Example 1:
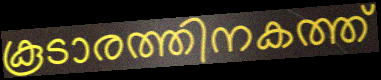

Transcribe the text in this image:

കൂടാരത്തിനകത്ത്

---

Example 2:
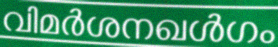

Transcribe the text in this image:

വിമർശനഖൾഗം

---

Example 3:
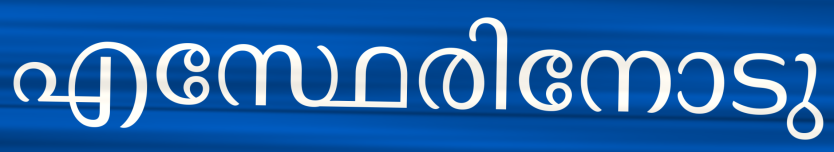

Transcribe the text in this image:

എസ്ഥേരിനോടു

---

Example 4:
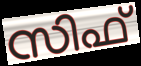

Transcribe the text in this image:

സിഫ്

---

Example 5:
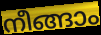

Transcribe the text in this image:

നീങ്ങാം